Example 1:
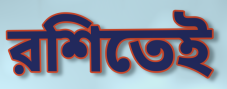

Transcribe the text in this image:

রশিতেই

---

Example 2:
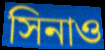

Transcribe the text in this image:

সিনাও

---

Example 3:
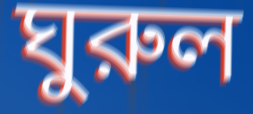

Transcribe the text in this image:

ঘুরুল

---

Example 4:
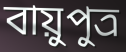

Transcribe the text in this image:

বায়ুপুত্র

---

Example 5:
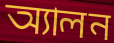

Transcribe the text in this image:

অ্যালন